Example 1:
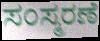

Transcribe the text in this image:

ಸಂಸ್ಮರಣೆ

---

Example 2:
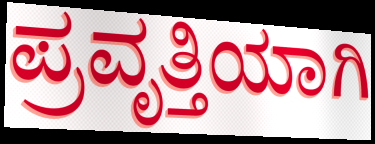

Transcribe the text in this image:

ಪ್ರವೃತ್ತಿಯಾಗಿ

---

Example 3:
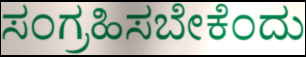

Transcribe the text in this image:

ಸಂಗ್ರಹಿಸಬೇಕೆಂದು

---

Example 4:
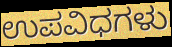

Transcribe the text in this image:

ಉಪವಿಧಗಳು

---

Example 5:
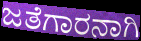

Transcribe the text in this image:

ಜತೆಗಾರನಾಗಿ